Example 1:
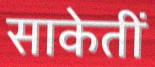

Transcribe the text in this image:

साकेतीं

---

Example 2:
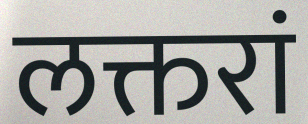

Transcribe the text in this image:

लक्तरां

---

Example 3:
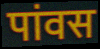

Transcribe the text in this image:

पांवस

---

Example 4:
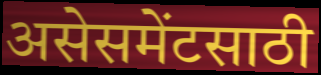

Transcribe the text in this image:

असेसमेंटसाठी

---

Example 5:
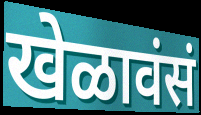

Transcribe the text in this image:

खेळावंसं